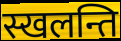
स्खलन्ति